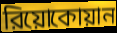
রিয়োকোয়ান